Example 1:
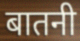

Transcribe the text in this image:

बातनी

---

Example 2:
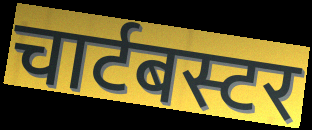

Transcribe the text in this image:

चार्टबस्टर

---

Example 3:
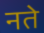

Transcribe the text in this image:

नते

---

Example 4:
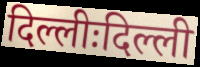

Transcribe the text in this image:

दिल्लीःदिल्ली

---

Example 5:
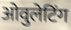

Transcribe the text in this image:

ओवुलेटिंग